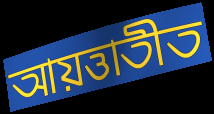
আয়ত্তাতীত